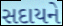
સદાયને